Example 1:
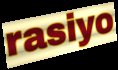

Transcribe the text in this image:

rasiyo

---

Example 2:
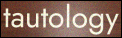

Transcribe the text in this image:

tautology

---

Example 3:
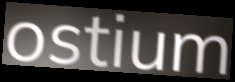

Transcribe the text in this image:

ostium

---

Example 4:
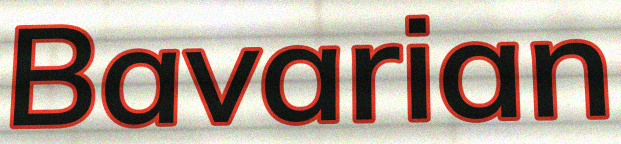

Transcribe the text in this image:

Bavarian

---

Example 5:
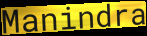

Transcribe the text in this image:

Manindra